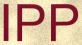
IPP